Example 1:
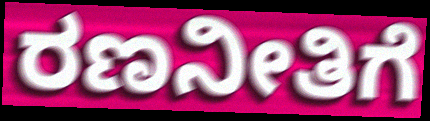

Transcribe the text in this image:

ರಣನೀತಿಗೆ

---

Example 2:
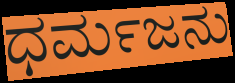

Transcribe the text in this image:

ಧರ್ಮಜನು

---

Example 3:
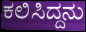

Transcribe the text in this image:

ಕಲಿಸಿದ್ದನು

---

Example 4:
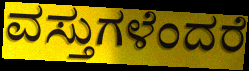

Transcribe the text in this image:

ವಸ್ತುಗಳೆಂದರೆ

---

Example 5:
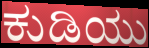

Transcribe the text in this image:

ಕುಡಿಯು